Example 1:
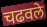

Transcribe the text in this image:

चढवले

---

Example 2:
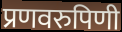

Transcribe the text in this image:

प्रणवरुपिणी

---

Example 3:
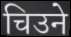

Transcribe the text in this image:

चिउने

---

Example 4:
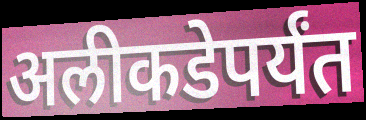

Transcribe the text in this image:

अलीकडेपर्यंत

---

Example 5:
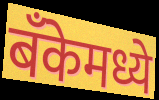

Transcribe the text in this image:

बँकेमध्ये